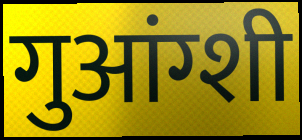
गुआंग्शी